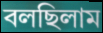
বলছিলাম